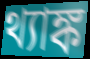
থ্যাঙ্ক